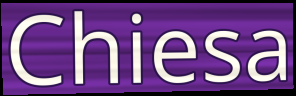
Chiesa